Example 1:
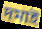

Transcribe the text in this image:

দমাই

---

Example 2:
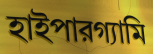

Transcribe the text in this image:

হাইপারগ্যামি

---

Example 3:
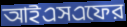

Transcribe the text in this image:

আইএসএফের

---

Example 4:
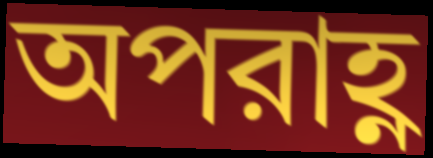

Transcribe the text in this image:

অপরাহ্ণ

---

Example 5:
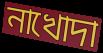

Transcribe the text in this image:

নাখোদা